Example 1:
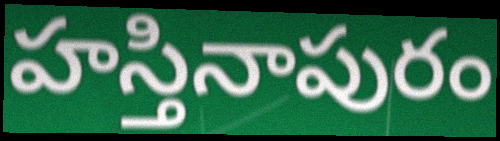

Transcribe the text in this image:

హస్తినాపురం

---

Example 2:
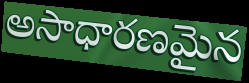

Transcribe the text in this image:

అసాధారణమైన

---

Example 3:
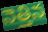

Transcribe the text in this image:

నెత్తిన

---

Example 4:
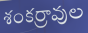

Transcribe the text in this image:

శంకర్రావుల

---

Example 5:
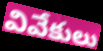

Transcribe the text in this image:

వివేకులు